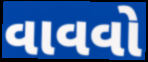
વાવવો